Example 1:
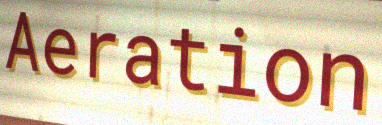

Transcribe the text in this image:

Aeration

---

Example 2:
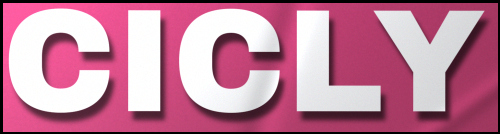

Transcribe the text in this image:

CICLY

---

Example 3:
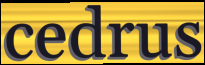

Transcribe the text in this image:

cedrus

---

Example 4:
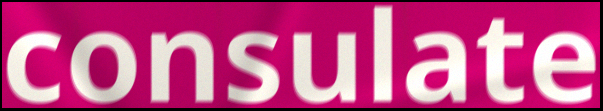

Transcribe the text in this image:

consulate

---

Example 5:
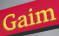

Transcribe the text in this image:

Gaim